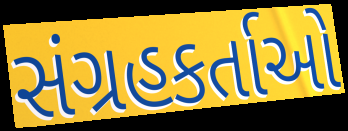
સંગ્રહકર્તાઓ